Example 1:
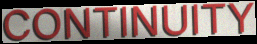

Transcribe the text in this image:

CONTINUITY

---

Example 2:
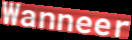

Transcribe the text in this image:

Wanneer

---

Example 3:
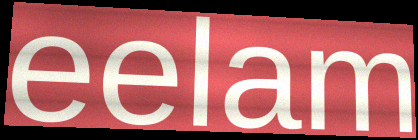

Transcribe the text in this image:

eelam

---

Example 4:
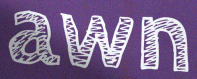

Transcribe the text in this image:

awn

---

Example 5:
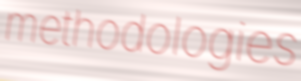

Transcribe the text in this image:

methodologies